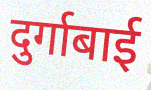
दुर्गाबाई